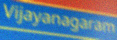
Vijayanagaram